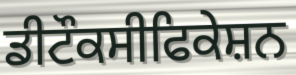
ਡੀਟੌਕਸੀਫਿਕੇਸ਼ਨ